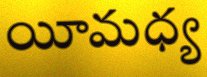
యీమధ్య